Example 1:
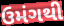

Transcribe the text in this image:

ઉમંગથી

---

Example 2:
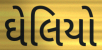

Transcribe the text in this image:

ઘેલિયો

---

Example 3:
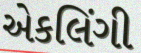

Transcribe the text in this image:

એકલિંગી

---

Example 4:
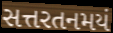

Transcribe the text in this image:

સત્તરતનમયં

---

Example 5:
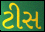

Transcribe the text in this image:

ટીસ